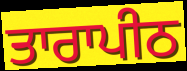
ਤਾਰਾਪੀਠ